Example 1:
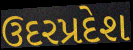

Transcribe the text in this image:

ઉદરપ્રદેશ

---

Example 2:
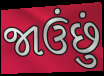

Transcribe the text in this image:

જાઉંછું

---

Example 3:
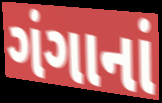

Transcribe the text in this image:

ગંગાનાં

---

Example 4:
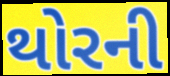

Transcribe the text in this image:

થોરની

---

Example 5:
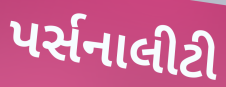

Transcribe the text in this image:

પર્સનાલીટી